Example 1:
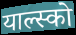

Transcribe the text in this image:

याल्स्को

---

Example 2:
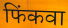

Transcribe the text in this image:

फिंकवा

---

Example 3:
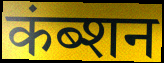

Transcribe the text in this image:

कंब्शन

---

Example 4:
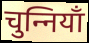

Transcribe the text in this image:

चुन्नियाँ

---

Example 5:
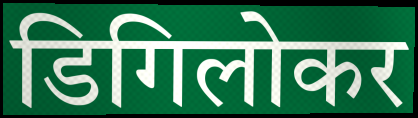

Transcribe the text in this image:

डिगिलोकर